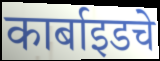
कार्बाइडचे